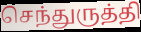
செந்துருத்தி